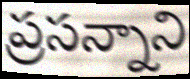
ప్రసన్నాని